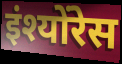
इंश्योंरेस